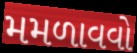
મમળાવવો